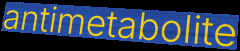
antimetabolite